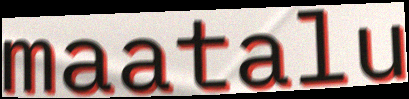
maatalu